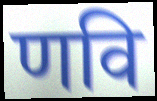
णवि